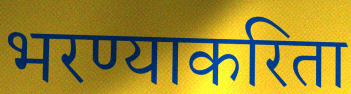
भरण्याकरिता